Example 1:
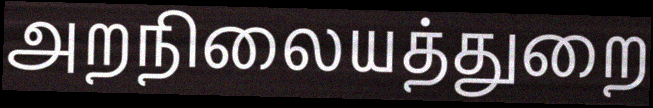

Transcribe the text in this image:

அறநிலையத்துறை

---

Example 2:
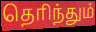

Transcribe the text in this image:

தெரிந்தும்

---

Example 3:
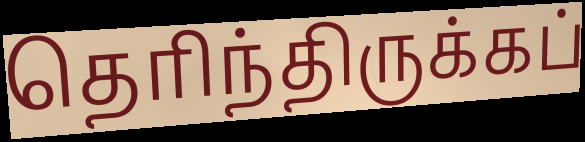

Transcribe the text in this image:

தெரிந்திருக்கப்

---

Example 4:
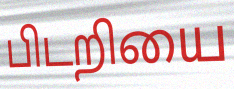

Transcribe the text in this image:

பிடறியை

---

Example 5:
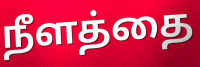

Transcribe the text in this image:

நீளத்தை